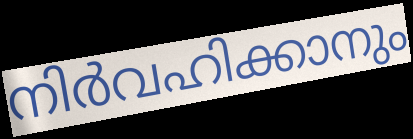
നിർവഹിക്കാനും